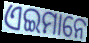
ଏଇମାନେ